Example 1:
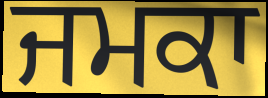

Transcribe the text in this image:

ਜਮਕਾ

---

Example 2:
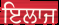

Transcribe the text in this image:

ਇਲਾਜ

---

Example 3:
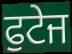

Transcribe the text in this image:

ਫੁਟੇਜ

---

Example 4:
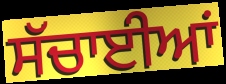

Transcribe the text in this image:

ਸੱਚਾਈਆਂ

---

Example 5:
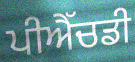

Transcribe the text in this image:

ਪੀਐੱਚਡੀ